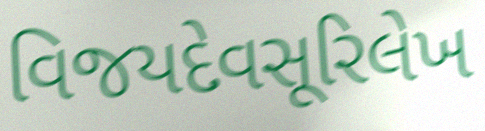
વિજયદેવસૂરિલેખ